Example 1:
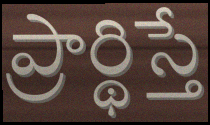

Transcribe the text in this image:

ప్రార్థిస్తే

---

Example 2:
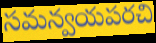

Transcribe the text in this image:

సమన్వయపరచి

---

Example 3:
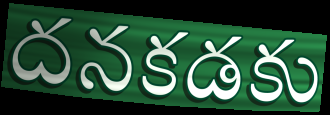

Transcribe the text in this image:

దనకడకు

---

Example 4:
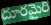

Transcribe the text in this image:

దూరమైరి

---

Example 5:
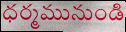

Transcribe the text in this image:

ధర్మమునుండి